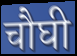
चौघी